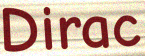
Dirac